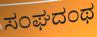
ಸಂಘದಂಥ